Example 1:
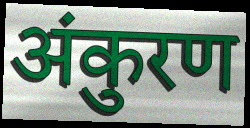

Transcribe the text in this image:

अंकुरण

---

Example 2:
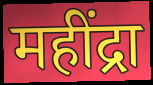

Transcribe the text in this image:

महींद्रा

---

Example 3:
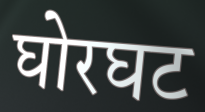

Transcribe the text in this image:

घोरघट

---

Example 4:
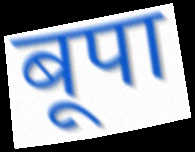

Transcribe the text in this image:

बूपा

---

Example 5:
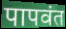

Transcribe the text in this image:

पापवंत